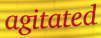
agitated